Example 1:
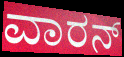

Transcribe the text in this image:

ವಾರನ್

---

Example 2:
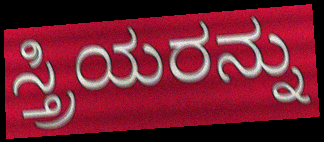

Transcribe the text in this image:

ಸ್ತ್ರಿಯರನ್ನು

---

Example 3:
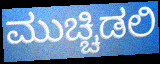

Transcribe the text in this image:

ಮುಚ್ಚಿಡಲಿ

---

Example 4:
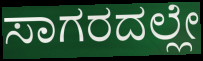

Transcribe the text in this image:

ಸಾಗರದಲ್ಲೇ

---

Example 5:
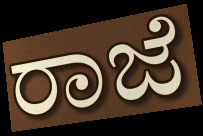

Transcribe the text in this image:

ರಾಜೆ